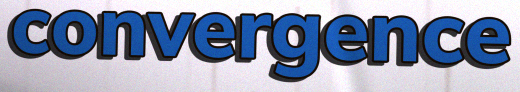
convergence